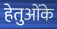
हेतुओंके